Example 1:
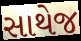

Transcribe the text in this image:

સાથેજ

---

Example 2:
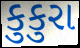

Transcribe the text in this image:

કુકુરા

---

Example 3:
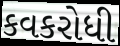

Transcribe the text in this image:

કવકરોધી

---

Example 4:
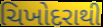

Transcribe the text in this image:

ચિખોદરાથી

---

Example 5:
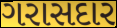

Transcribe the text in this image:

ગરાસદાર